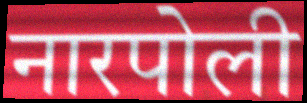
नारपोली